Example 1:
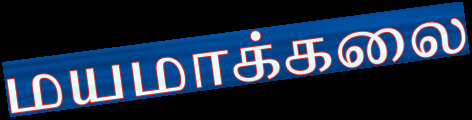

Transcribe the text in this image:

மயமாக்கலை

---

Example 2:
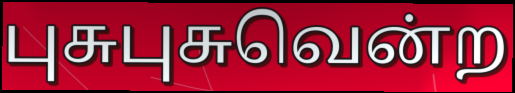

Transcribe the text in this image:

புசுபுசுவென்ற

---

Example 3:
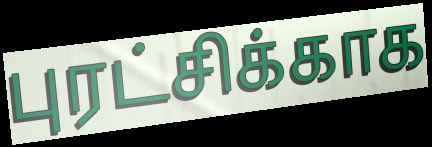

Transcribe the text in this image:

புரட்சிக்காக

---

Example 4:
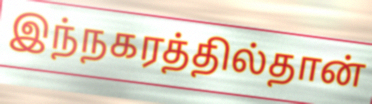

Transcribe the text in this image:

இந்நகரத்தில்தான்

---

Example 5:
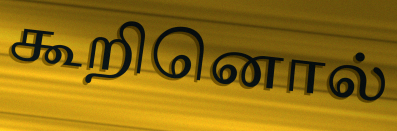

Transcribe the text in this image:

கூறினொல்